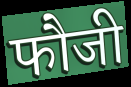
फौजी